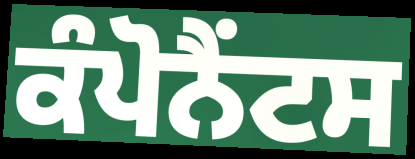
ਕੰਪੋਨੈਂਟਸ